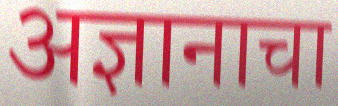
अज्ञानाचा